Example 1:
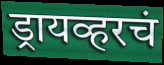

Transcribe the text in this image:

ड्रायव्हरचं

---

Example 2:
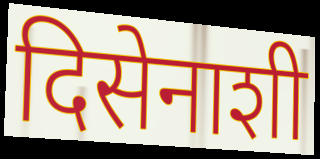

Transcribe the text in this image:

दिसेनाशी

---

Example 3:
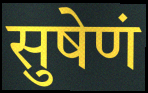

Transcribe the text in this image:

सुषेणं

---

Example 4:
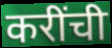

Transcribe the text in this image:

करींची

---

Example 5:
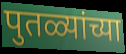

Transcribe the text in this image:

पुतळ्यांच्या